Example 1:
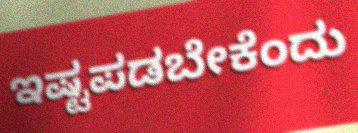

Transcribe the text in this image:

ಇಷ್ಟಪಡಬೇಕೆಂದು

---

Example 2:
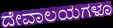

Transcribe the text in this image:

ದೇವಾಲಯಗಳೂ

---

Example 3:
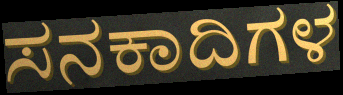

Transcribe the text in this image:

ಸನಕಾದಿಗಳ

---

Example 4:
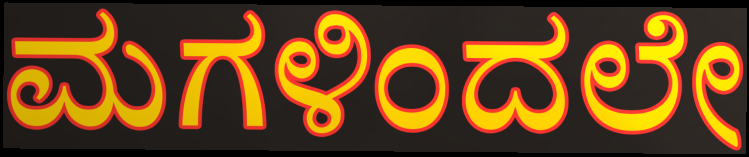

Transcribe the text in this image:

ಮಗಳಿಂದಲೇ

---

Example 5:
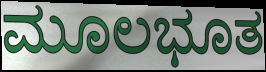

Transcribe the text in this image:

ಮೂಲಭೂತ